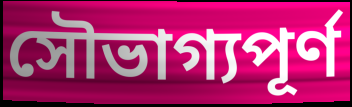
সৌভাগ্যপূর্ণ